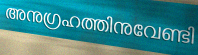
അനുഗ്രഹത്തിനുവേണ്ടി